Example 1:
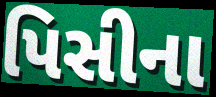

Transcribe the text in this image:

પિસીના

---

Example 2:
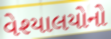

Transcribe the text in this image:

વેશ્યાલયોનો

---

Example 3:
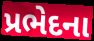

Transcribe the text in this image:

પ્રભેદના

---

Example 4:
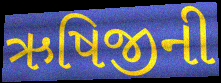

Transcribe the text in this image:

ઋષિજીની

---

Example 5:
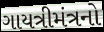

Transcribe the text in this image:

ગાયત્રીમંત્રનો